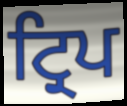
ਟ੍ਰਿਪ